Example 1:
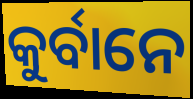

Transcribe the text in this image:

କୁର୍ବାନେ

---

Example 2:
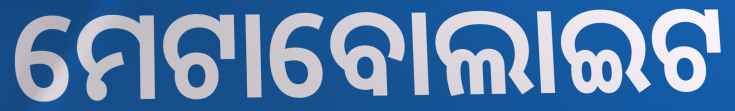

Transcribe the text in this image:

ମେଟାବୋଲାଇଟ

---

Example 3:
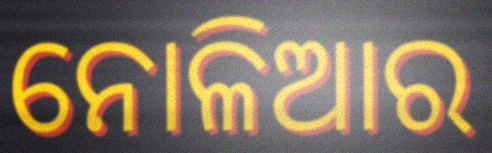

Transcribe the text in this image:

ନୋଳିଆର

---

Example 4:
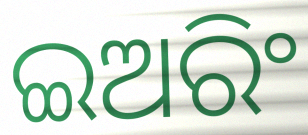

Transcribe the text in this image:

ଇଅରିଂ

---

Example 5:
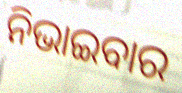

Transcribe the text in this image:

ନିଭାଇବାର